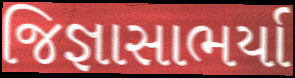
જિજ્ઞાસાભર્યા